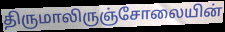
திருமாலிருஞ்சோலையின்